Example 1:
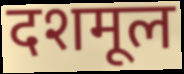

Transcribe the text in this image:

दशमूल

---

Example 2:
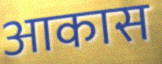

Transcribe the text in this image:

आकास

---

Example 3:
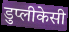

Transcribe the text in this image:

डुप्लीकेसी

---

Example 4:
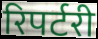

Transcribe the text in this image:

रिपर्टरी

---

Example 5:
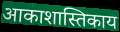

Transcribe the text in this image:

आकाशास्तिकाय